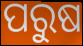
ପରୁଷ